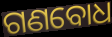
ଗଣବୋଧ